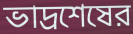
ভাদ্রশেষের